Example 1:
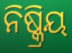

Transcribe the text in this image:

ନିଷ୍କ୍ରିୟ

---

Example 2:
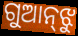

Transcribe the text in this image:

ଗୁଆନ୍‌ଝୁ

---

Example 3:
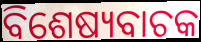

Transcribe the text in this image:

ବିଶେଷ୍ୟବାଚକ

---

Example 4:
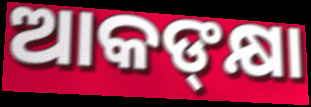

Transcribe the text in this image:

ଆକଙ୍‌କ୍ଷା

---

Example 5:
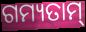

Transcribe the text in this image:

ଗମ୍ୟତାମ୍